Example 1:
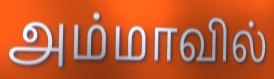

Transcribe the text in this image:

அம்மாவில்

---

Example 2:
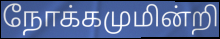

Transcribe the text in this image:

நோக்கமுமின்றி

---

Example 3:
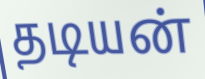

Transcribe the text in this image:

தடியன்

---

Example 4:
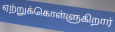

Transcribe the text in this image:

ஏற்றுக்கொள்ளுகிறார்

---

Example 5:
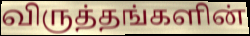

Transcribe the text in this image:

விருத்தங்களின்